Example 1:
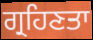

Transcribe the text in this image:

ਗ੍ਰਹਿਣਤਾ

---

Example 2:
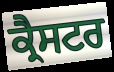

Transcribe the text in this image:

ਕ੍ਰੈਸਟਰ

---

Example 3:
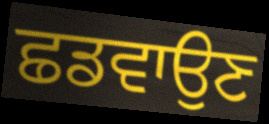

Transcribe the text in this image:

ਛਡਵਾਉਣ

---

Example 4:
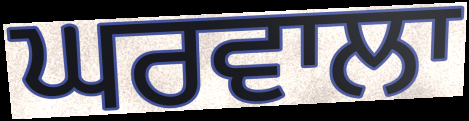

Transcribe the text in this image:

ਘਰਵਾਲਾ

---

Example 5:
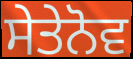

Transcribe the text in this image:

ਸੇਤੇਨੋਵ